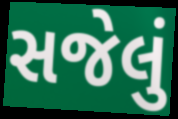
સજેલું